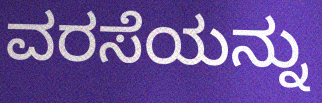
ವರಸೆಯನ್ನು